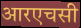
आरएचसी